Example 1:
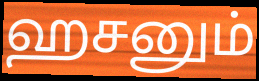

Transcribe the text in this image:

ஹசனும்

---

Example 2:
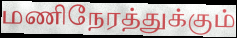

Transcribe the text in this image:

மணிநேரத்துக்கும்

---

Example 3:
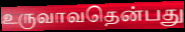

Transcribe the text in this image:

உருவாவதென்பது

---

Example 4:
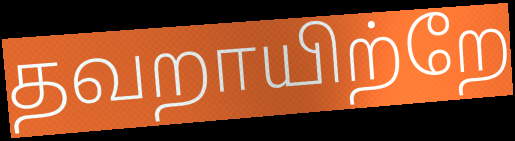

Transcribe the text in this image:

தவறாயிற்றே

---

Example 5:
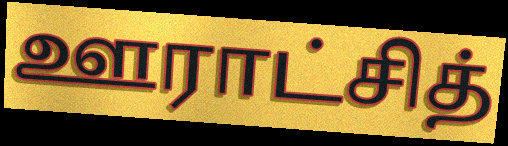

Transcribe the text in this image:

ஊராட்சித்